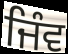
ਜਿੰਵ